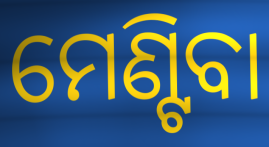
ମେଣ୍ଟିବା